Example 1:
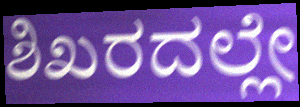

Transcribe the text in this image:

ಶಿಖರದಲ್ಲೇ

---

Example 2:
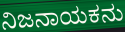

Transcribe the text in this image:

ನಿಜನಾಯಕನು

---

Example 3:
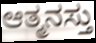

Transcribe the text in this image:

ಆತ್ಮನಸ್ತು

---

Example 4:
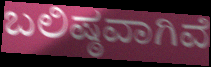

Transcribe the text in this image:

ಬಲಿಷ್ಠವಾಗಿವೆ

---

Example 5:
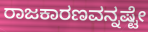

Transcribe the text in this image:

ರಾಜಕಾರಣವನ್ನಷ್ಟೇ